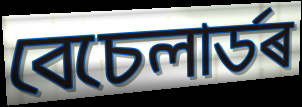
বেচেলাৰ্ডৰ